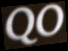
QO